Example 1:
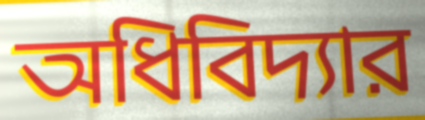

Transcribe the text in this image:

অধিবিদ্যার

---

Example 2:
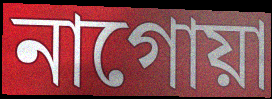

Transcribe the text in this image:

নাগোয়া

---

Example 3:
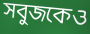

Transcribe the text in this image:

সবুজকেও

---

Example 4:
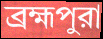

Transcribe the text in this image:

ব্রহ্মপুরা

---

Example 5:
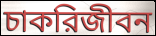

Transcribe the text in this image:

চাকরিজীবন